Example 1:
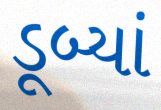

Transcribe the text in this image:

ડૂબ્યાં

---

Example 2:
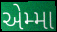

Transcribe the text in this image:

એમ્મા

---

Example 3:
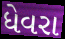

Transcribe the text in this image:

ધેવરા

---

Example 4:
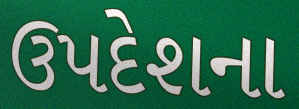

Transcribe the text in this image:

ઉપદેશના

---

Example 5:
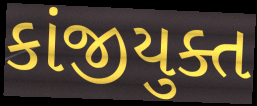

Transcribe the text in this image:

કાંજીયુક્ત